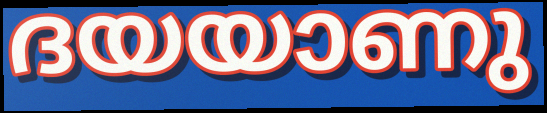
ദയയാണു